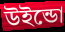
উইন্ডো